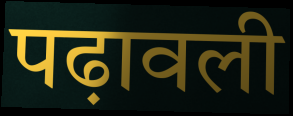
पढ़ावली